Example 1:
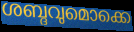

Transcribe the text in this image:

ശബ്ദവുമൊക്കെ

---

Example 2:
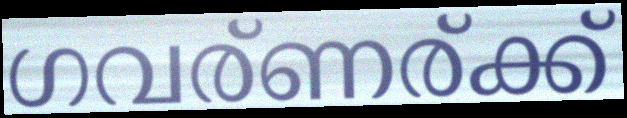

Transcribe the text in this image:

ഗവര്ണര്ക്ക്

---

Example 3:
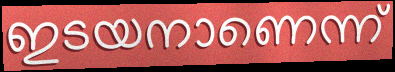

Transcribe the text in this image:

ഇടയനാണെന്ന്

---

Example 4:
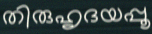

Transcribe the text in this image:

തിരുഹൃദയപ്പൂ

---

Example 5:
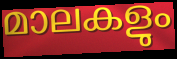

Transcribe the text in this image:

മാലകളും